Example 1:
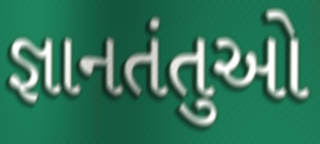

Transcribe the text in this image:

જ્ઞાનતંતુઓ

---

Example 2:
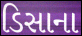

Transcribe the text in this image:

ડિસાના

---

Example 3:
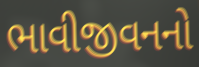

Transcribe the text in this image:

ભાવીજીવનનો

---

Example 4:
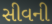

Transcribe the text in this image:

સીવની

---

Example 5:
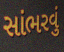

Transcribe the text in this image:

સાંભરવું